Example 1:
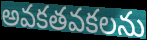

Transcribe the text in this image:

అవకతవకలను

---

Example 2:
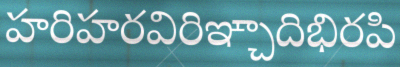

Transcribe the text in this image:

హరిహరవిరిఞ్చాదిభిరపి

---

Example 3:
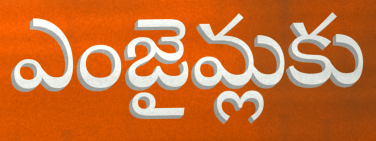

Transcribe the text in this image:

ఎంజైమ్లకు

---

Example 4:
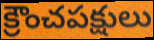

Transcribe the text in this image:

క్రౌంచపక్షులు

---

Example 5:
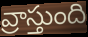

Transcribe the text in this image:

వ్రాస్తుంది